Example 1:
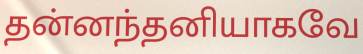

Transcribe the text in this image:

தன்னந்தனியாகவே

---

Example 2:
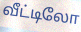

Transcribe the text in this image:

வீட்டிலோ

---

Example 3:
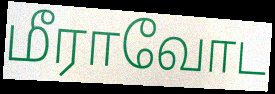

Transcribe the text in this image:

மீராவோட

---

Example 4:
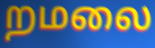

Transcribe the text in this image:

றமலை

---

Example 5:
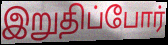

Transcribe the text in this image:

இறுதிப்போர்